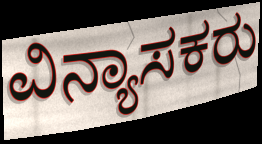
ವಿನ್ಯಾಸಕರು